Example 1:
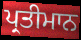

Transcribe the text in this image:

ਪ੍ਰਤੀਮਾਨ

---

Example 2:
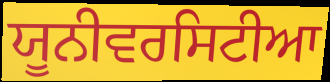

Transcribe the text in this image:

ਯੂਨੀਵਰਸਿਟੀਆ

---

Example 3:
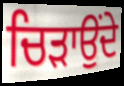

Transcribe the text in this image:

ਚਿੜਾਉਂਦੇ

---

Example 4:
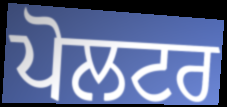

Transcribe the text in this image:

ਪੋਲਟਰ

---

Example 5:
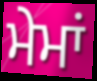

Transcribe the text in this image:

ਮੇਮਾਂ